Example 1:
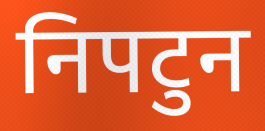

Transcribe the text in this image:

निपटुन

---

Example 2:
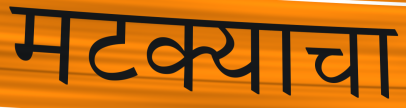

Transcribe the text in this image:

मटक्याचा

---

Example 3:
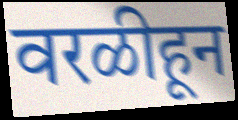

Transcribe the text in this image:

वरळीहून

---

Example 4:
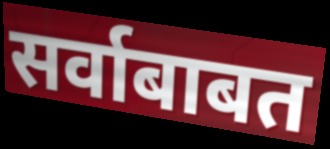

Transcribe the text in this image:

सर्वाबाबत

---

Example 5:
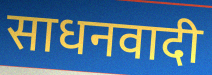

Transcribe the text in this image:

साधनवादी